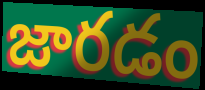
జారడం